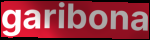
garibona